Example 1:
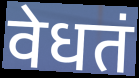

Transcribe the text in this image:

वेधतं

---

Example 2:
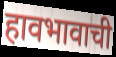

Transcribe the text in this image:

हावभावाची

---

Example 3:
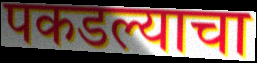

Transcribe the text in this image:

पकडल्याचा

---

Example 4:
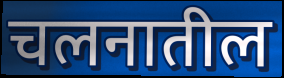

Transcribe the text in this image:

चलनातील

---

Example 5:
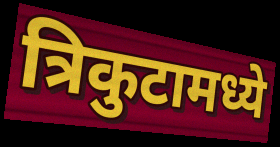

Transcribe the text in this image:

त्रिकुटामध्ये